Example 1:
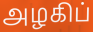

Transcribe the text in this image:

அழகிப்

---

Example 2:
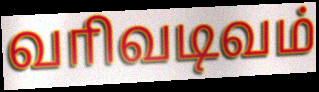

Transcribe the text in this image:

வரிவடிவம்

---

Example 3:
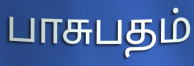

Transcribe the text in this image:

பாசுபதம்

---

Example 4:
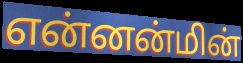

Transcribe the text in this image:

என்னன்மின்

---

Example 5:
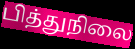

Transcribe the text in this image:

பித்துநிலை